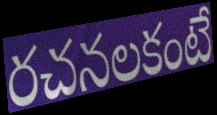
రచనలకంటే